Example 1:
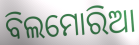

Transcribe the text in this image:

ବିଲମୋରିଆ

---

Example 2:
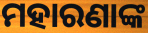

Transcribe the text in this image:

ମହାରଣାଙ୍କ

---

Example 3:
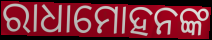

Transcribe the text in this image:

ରାଧାମୋହନଙ୍କ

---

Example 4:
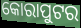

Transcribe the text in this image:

କୋରାପୁଟର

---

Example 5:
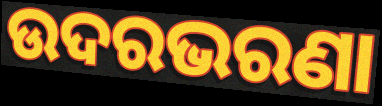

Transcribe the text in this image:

ଉଦରଭରଣା